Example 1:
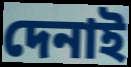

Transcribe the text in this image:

দেনাই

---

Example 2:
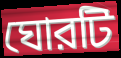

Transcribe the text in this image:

ঘোরটি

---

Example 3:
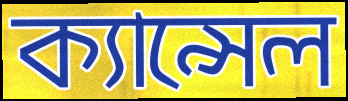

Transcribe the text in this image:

ক্যান্সেল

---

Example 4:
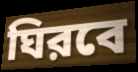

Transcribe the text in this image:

ঘিরবে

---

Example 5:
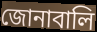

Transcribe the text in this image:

জোনাবালি